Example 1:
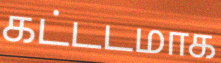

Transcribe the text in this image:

கட்டடமாக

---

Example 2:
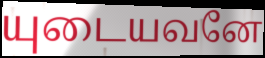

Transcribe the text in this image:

யுடையவனே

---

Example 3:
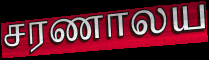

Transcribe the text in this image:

சரணாலய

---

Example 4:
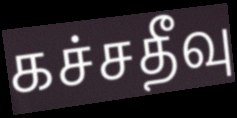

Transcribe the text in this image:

கச்சதீவு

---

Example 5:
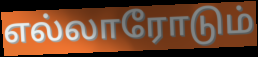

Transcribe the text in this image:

எல்லாரோடும்